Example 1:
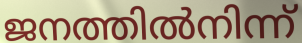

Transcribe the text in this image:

ജനത്തിൽനിന്ന്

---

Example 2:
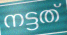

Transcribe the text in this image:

നട്ടത്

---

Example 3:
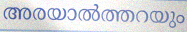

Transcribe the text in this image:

അരയാൽത്തറയും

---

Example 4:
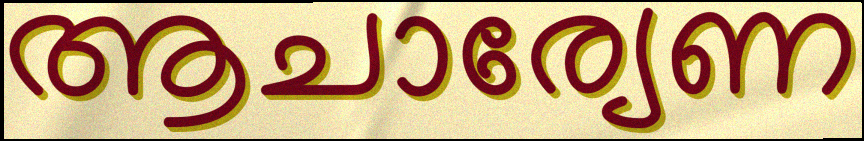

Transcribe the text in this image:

ആചാര്യേണ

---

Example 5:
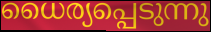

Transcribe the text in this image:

ധൈര്യപ്പെടുന്നു